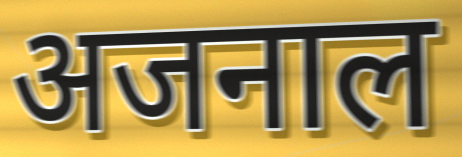
अजनाल